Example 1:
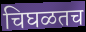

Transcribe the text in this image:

चिघळतच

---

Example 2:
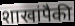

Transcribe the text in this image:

शाखांपैकी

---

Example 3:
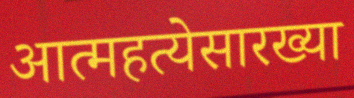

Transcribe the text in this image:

आत्महत्येसारख्या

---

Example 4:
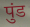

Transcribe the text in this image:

पुंड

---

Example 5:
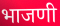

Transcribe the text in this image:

भाजणी